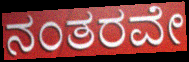
ನಂತರವೇ